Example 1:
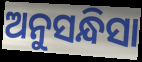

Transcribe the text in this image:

ଅନୁସନ୍ଧିସା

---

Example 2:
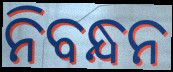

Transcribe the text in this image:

ନିବନ୍ଧନ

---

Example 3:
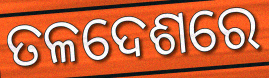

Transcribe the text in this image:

ତଳଦେଶରେ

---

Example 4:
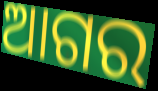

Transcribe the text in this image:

ଆଗର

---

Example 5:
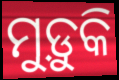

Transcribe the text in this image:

ମୁଡ଼ୁକି